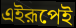
এইরূপেই